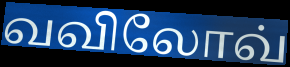
வவிலோவ்